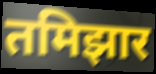
तमिझार